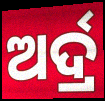
ଅର୍ଦ୍ର